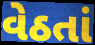
વેઠતાં